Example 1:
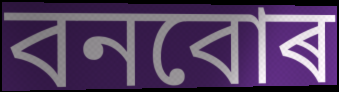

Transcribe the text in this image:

বনবোৰ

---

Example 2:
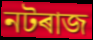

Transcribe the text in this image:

নটৰাজ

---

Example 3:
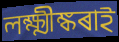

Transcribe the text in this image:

লক্ষ্মীঙ্কৰাই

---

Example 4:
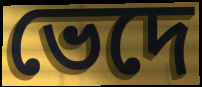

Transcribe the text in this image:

ভেদে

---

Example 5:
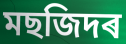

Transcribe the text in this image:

মছজিদৰ